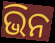
ଭିନ